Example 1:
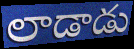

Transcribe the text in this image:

లాడాడు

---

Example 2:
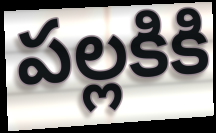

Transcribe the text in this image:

పల్లకికి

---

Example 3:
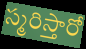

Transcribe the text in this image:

స్మరిస్తారో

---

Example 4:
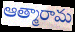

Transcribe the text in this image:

ఆత్మారామ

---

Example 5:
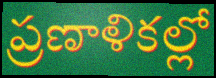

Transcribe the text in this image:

ప్రణాళికల్లో